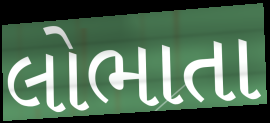
લોભાતા